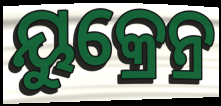
ୟୁକ୍ରେନ୍ର